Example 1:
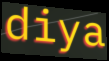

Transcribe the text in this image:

diya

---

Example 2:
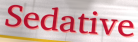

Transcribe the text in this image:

Sedative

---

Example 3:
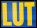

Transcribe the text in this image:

LUT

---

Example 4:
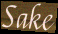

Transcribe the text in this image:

Sake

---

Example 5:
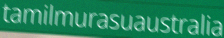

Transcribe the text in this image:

tamilmurasuaustralia